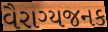
વૈરાગ્યજનક